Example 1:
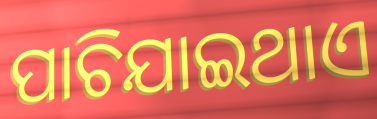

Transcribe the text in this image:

ପାଚିଯାଇଥାଏ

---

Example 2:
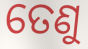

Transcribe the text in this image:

ତେଣୁ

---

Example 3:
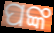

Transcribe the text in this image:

ପଙ୍କ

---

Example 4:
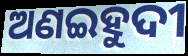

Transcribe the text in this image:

ଅଣଇହୁଦୀ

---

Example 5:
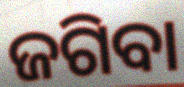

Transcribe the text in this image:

ଜଗିବା